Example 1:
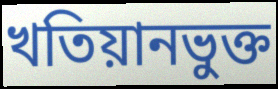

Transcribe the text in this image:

খতিয়ানভুক্ত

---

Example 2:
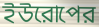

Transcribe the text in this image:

ইউরোপের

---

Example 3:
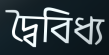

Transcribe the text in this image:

দ্বৈবিধ্য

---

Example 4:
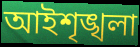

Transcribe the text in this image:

আইশৃঙ্খলা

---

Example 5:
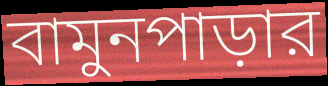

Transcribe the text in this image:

বামুনপাড়ার